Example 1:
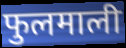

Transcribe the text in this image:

फुलमाली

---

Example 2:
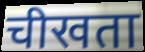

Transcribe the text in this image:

चीखता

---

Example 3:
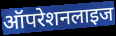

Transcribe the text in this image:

ऑपरेशनलाइज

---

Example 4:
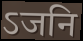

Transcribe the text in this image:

ऽजनि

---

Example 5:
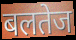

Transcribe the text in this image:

बलतेज